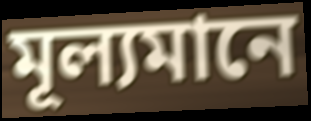
মূল্যমানে